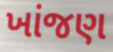
ખાંજણ